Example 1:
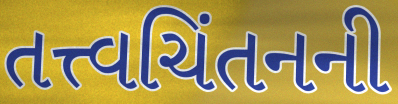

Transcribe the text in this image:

તત્ત્વચિંતનની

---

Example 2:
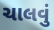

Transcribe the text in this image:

ચાલવું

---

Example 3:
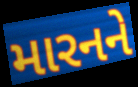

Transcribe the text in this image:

મારનને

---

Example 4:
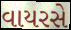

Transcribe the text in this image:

વાયરસે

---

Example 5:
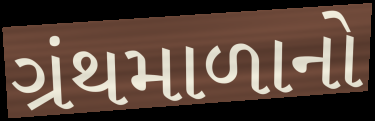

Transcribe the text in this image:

ગ્રંથમાળાનો